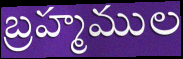
బ్రహ్మముల